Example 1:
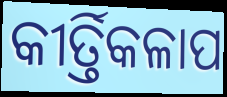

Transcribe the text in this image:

କୀର୍ତ୍ତିକଳାପ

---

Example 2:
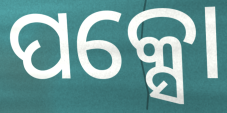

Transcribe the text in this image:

ପକ୍ସୋ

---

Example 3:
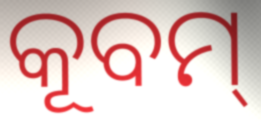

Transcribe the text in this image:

କୂବମ୍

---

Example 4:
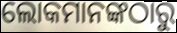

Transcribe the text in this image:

ଲୋକମାନଙ୍କଠାରୁ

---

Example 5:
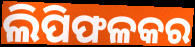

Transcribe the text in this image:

ଲିପିଫଳକର